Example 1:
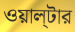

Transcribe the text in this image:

ওয়াল্‌টার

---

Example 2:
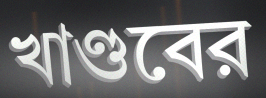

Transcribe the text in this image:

খাণ্ডবের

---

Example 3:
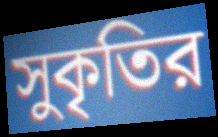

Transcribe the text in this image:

সুকৃতির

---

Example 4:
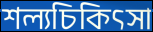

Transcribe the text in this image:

শল্যচিকিৎসা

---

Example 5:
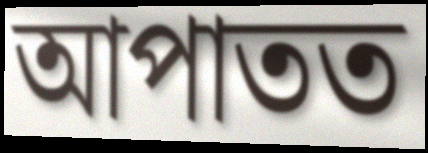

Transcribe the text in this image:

আপাতত